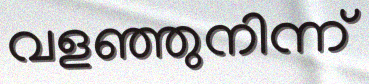
വളഞ്ഞുനിന്ന്